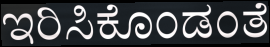
ಇರಿಸಿಕೊಂಡಂತೆ